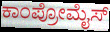
ಕಾಂಪ್ರೋಮೈಸ್